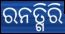
ରନତ୍ଗିରି